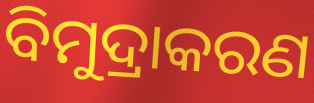
ବିମୁଦ୍ରାକରଣ